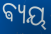
ଵ୍ୟୟ